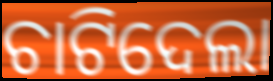
ଚାଟିଦେଲା